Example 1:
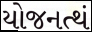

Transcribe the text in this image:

યોજનત્થં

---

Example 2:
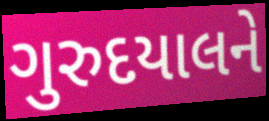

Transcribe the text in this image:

ગુરુદયાલને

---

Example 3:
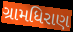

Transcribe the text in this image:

ગ્રામધિરાણ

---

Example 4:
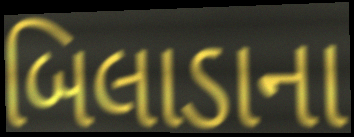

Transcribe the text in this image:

બિલાડાના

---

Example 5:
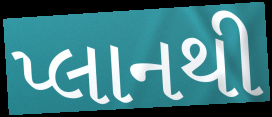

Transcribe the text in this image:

પ્લાનથી